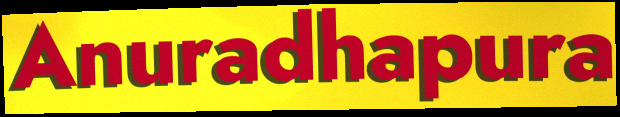
Anuradhapura